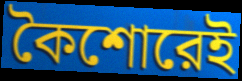
কৈশোরেই